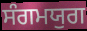
ਸੰਗਮਯੁਗ